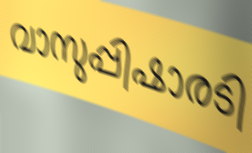
വാസുപ്പിഷാരടി